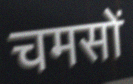
चमसों